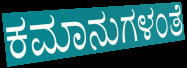
ಕಮಾನುಗಳಂತೆ